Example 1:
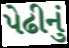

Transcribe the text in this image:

પેઢીનું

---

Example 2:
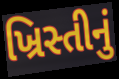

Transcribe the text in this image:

ખ્રિસ્તીનું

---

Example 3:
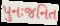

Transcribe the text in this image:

પુનઃજનિત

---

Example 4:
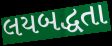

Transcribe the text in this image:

લયબદ્ધતા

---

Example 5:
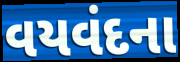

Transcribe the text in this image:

વયવંદના